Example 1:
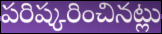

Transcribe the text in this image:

పరిష్కరించినట్లు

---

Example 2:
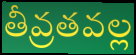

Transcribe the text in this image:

తీవ్రతవల్ల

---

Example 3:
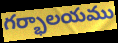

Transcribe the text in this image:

గర్భాలయము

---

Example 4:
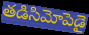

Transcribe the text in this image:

తడిసిమోపెడై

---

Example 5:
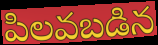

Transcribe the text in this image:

పిలవబడిన